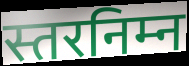
स्तरनिम्न